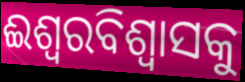
ଈଶ୍ୱରବିଶ୍ୱାସକୁ